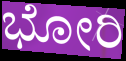
ಭೋರಿ